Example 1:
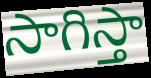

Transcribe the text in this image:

సాగిస్తా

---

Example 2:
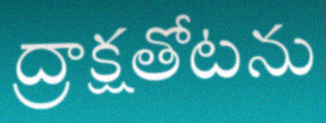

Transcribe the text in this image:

ద్రాక్షతోటను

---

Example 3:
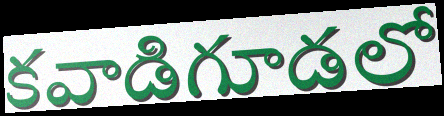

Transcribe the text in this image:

కవాడిగూడలో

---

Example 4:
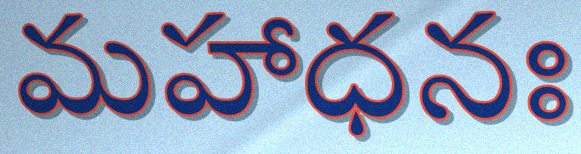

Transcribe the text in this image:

మహాధనః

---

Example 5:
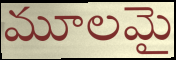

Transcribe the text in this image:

మూలమై